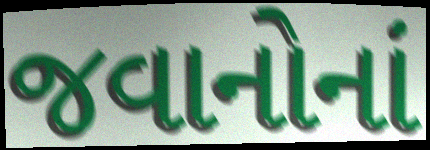
જવાનોનાં